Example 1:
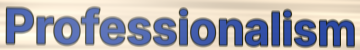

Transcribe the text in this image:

Professionalism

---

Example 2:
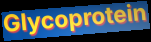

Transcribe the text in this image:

Glycoprotein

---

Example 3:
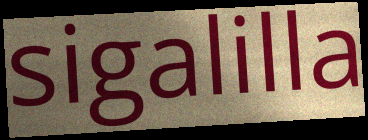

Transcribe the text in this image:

sigalilla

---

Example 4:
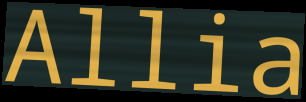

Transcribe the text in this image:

Allia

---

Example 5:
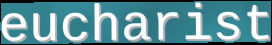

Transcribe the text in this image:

eucharist